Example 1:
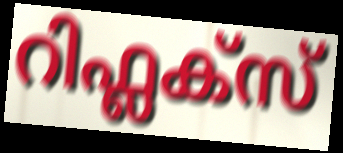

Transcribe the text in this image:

റിഫ്ലക്സ്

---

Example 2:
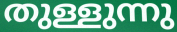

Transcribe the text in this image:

തുള്ളുന്നു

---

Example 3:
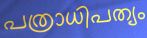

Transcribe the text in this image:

പത്രാധിപത്യം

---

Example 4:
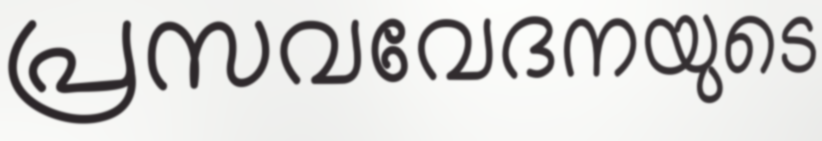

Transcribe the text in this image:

പ്രസവവേദനയുടെ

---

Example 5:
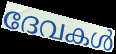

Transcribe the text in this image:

ദേവകൾ